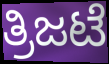
ತ್ರಿಜಟೆ